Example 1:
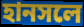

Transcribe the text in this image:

হানসলে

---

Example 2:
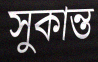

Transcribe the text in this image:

সুকান্ত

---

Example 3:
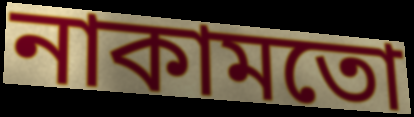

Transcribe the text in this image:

নাকামতো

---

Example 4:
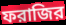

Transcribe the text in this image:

ফরাজির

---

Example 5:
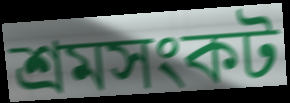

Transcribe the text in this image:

শ্রমসংকট